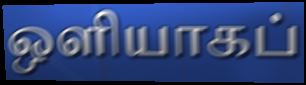
ஒளியாகப்